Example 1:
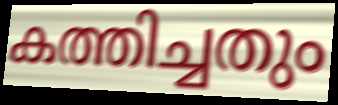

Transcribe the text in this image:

കത്തിച്ചതും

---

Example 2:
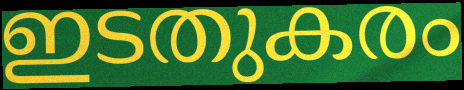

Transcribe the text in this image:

ഇടതുകരം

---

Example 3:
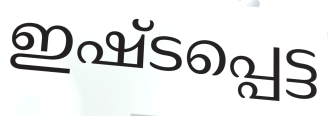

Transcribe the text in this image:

ഇഷ്ടപ്പെട്ട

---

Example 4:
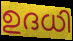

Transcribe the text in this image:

ഉദധി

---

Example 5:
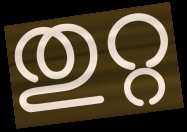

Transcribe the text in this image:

തുറ്റ